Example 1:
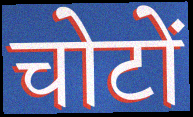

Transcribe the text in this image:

चोटों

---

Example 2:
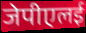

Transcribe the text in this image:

जेपीएलई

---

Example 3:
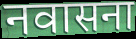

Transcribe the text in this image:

नवासना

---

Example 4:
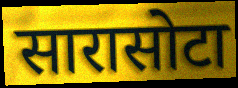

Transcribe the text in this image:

सारासोटा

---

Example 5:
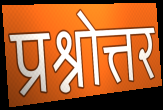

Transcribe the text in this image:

प्रश्नोत्तर